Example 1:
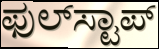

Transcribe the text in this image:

ಫುಲ್‍ಸ್ಟಾಪ್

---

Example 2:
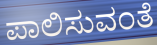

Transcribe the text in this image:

ಪಾಲಿಸುವಂತೆ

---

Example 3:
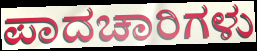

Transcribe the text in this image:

ಪಾದಚಾರಿಗಳು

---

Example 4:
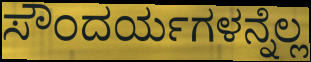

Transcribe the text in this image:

ಸೌಂದರ್ಯಗಳನ್ನೆಲ್ಲ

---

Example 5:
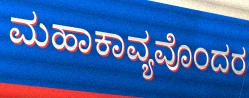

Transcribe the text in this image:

ಮಹಾಕಾವ್ಯವೊಂದರ